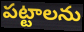
పట్టాలను